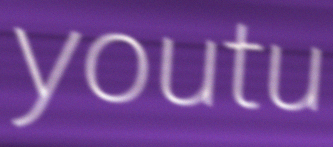
youtu